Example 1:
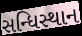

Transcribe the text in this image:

સન્ધિસ્થાન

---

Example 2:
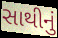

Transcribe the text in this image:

સાથીનું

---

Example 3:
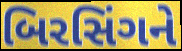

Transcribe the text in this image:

બિરસિંગને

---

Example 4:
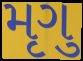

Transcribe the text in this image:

મૃગુ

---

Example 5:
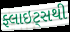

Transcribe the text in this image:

ફ્લાઇટ્સથી